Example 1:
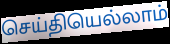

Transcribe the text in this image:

செய்தியெல்லாம்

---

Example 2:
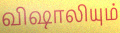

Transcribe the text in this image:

விஷாலியும்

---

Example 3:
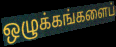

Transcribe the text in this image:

ஒழுக்கங்களைப்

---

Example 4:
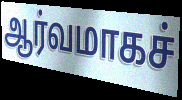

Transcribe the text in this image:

ஆர்வமாகச்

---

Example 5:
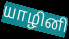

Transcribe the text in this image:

யாழினி